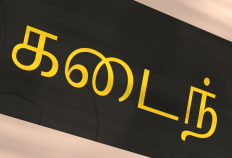
கடைந்